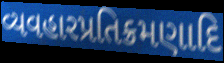
વ્યવહારપ્રતિક્રમણાદિ